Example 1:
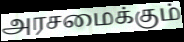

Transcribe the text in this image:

அரசமைக்கும்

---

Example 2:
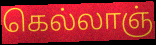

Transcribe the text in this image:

கெல்லாஞ்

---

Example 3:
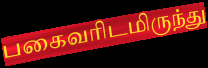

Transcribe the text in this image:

பகைவரிடமிருந்து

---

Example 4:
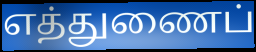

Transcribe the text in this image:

எத்துணைப்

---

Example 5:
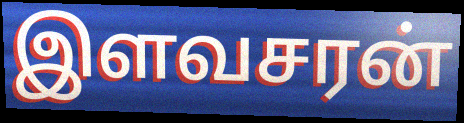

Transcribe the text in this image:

இளவசரன்